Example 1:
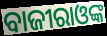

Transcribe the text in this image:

ବାଜୀରାଓଙ୍କ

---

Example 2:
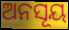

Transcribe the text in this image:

ଅନସୂୟ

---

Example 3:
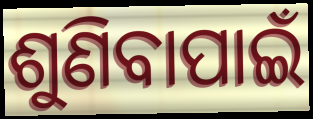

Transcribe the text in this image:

ଶୁଣିବାପାଇଁ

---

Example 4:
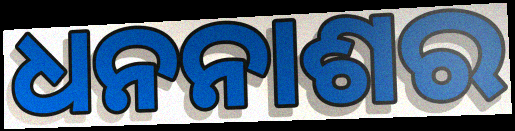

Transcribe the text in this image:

ଧନନାଶର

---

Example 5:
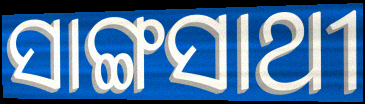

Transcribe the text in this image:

ସାଙ୍ଗସାଥୀ